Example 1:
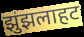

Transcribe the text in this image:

झुंझलाहट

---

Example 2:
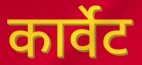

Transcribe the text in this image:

कार्वेट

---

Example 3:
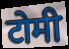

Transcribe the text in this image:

टोमी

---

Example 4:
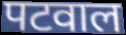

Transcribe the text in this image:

पटवाल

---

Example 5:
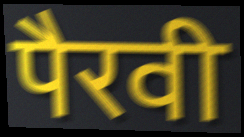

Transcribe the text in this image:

पैरवी